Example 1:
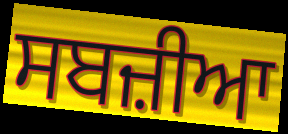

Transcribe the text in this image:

ਸਬਜ਼ੀਆ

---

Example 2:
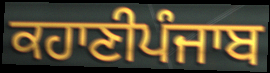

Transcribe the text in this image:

ਕਹਾਣੀਪੰਜਾਬ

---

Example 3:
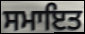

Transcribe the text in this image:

ਸਮਾਇਤ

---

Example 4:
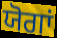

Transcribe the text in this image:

ਯੋਗਾਂ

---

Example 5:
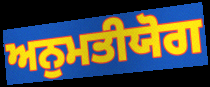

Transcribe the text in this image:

ਅਨੁਮਤੀਯੋਗ